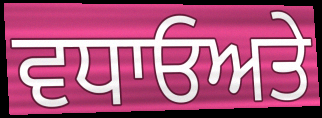
ਵਧਾਓਅਤੇ